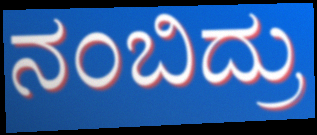
ನಂಬಿದ್ರು